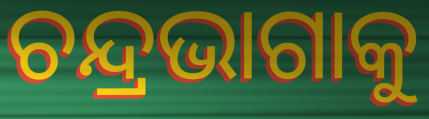
ଚନ୍ଦ୍ରଭାଗାକୁ